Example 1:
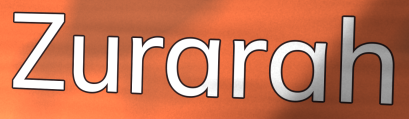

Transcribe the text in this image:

Zurarah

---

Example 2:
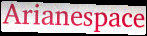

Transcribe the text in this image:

Arianespace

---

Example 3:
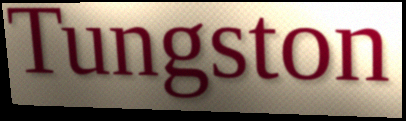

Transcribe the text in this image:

Tungston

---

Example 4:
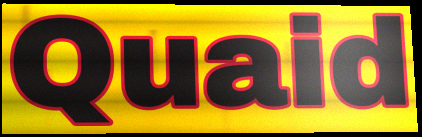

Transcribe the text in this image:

Quaid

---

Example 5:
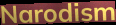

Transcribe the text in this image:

Narodism